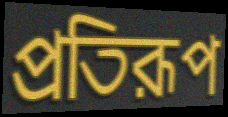
প্রতিরূপ